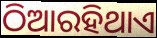
ଠିଆରହିଥାଏ